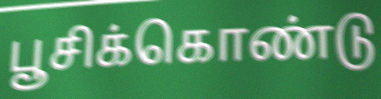
பூசிக்கொண்டு